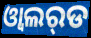
ଓ୍ବାଲର୍‌ଡ